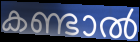
കണ്ടാൽ